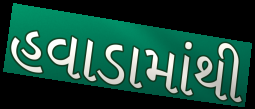
હવાડામાંથી